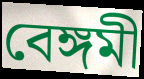
বেঙ্গমী